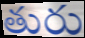
తురు